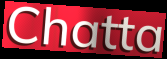
Chatta